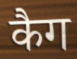
कैग